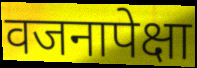
वजनापेक्षा